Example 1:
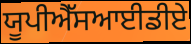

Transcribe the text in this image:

ਯੂਪੀਐੱਸਆਈਡੀਏ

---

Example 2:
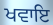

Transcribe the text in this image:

ਖਵਾਇ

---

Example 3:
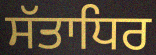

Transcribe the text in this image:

ਸੱਤਾਧਿਰ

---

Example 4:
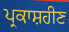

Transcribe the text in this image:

ਪ੍ਰਕਾਸ਼ਹੀਣ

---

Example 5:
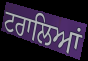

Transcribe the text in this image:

ਟਰਾਲਿਆਂ